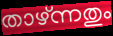
താഴ്ന്നതും